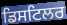
ਡਿਸਟਿਲਰ